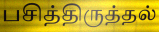
பசித்திருத்தல்